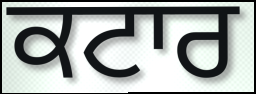
ਕਟਾਰ